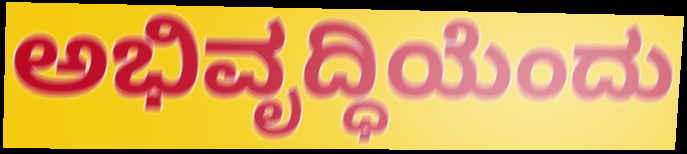
ಅಭಿವೃದ್ಧಿಯೆಂದು